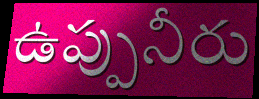
ఉప్పునీరు